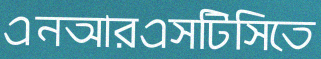
এনআরএসটিসিতে